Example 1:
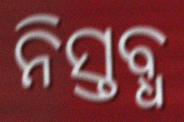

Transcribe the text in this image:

ନିସ୍ତବ୍ଧ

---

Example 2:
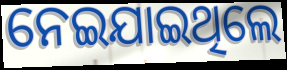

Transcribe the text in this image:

ନେଇଯାଇଥିଲେ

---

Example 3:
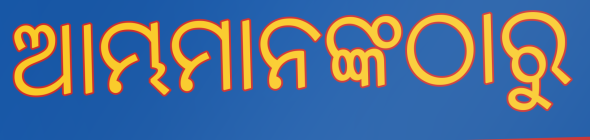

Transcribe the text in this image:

ଆମ୍ଭମାନଙ୍କଠାରୁ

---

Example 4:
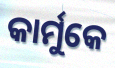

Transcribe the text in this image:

କାର୍ମୁକେ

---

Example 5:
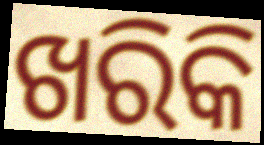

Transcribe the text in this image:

ଖରିକି